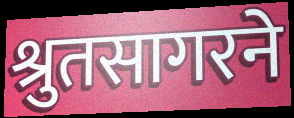
श्रुतसागरने